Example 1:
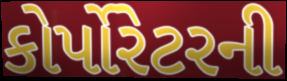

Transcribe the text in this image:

કોર્પોરેટરની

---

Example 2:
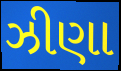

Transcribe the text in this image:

ઝીણા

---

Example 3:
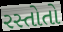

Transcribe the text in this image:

રસ્તોતો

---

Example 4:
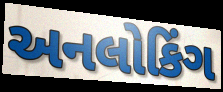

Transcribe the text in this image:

અનલોકિંગ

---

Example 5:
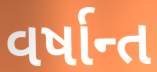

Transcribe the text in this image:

વર્ષાન્ત